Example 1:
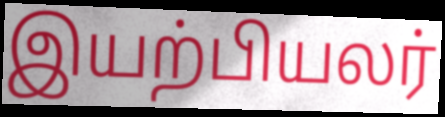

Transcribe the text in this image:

இயற்பியலர்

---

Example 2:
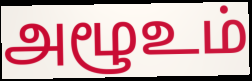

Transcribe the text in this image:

அழூஉம்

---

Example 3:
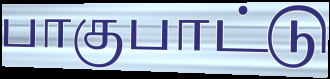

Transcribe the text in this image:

பாகுபாட்டு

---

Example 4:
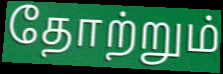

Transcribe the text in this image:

தோற்றும்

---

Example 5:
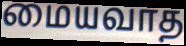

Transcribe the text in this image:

மையவாத